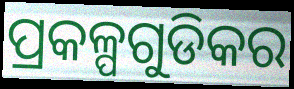
ପ୍ରକଳ୍ପଗୁଡିକର